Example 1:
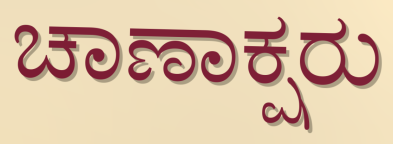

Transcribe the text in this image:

ಚಾಣಾಕ್ಷರು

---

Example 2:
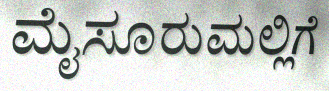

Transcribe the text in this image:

ಮೈಸೂರುಮಲ್ಲಿಗೆ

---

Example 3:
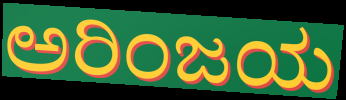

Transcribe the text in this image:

ಅರಿಂಜಯ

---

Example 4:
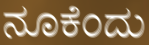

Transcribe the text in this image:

ನೂಕೆಂದು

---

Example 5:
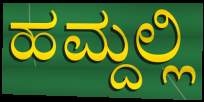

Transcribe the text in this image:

ಹಮ್ದಲ್ಲಿ